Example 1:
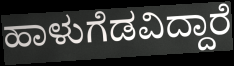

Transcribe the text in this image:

ಹಾಳುಗೆಡವಿದ್ದಾರೆ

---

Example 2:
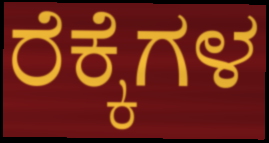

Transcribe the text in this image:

ರೆಕ್ಕೆಗಳ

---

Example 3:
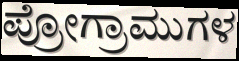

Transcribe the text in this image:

ಪ್ರೋಗ್ರಾಮುಗಳ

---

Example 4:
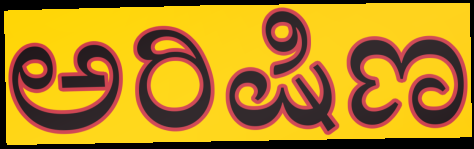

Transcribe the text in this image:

ಅರಿಷಿಣ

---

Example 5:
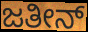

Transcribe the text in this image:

ಜತೀನ್